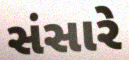
સંસારે